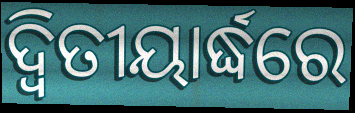
ଦ୍ବିତୀୟାର୍ଦ୍ଧରେ